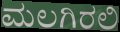
ಮಲಗಿರಲಿ